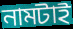
নামটাই